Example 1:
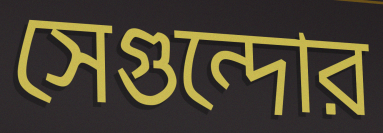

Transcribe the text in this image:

সেগুন্দোর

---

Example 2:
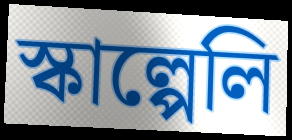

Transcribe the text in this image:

স্কাল্পেলি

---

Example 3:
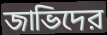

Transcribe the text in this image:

জাভিদের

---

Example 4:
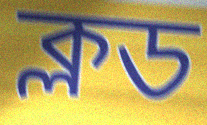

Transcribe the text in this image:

ক্লড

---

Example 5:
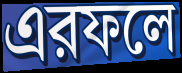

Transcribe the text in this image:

এরফলে